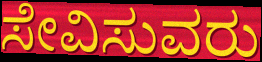
ಸೇವಿಸುವರು